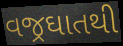
વજ્રઘાતથી